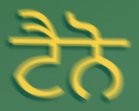
ਟੈਨੋ